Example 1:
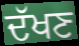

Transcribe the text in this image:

ਦੱਖਣ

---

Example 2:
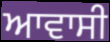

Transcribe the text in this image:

ਆਵਾਸੀ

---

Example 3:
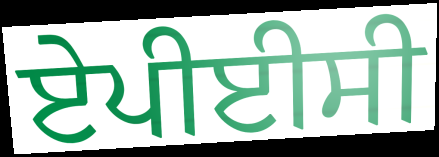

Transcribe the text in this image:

ਏਪੀਈਸੀ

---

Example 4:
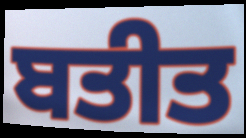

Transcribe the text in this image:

ਬਤੀਤ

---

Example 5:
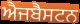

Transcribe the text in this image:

ਐਜਬੈਸਟਨ